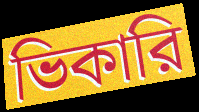
ভিকারি